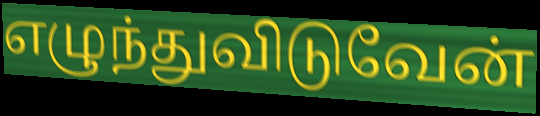
எழுந்துவிடுவேன்